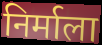
निर्माला